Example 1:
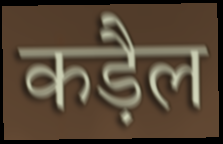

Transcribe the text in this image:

कड़ैल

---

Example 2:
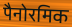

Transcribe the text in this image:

पैनोरमिक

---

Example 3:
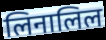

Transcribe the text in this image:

लिनालिल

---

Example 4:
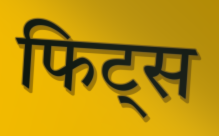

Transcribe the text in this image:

फिट्स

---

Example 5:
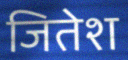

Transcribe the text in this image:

जितेश